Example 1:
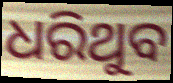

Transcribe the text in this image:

ଧରିଥୁବ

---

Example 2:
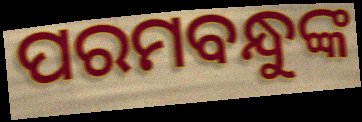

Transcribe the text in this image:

ପରମବନ୍ଧୁଙ୍କ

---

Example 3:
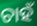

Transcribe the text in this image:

ଚାହଁ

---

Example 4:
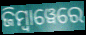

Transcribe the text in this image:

ଜିମ୍ୱାୱେରେ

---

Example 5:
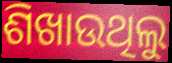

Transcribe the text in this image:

ଶିଖାଉଥିଲୁ